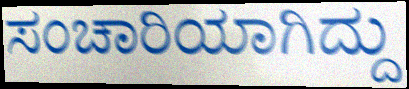
ಸಂಚಾರಿಯಾಗಿದ್ದು